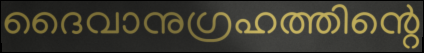
ദൈവാനുഗ്രഹത്തിന്റെ